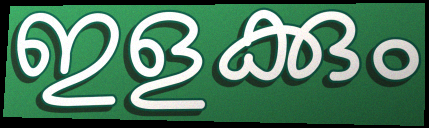
ഇളക്കും